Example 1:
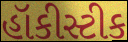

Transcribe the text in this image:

હૉકીસ્ટીક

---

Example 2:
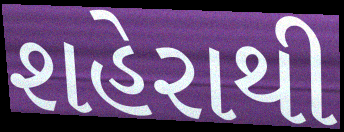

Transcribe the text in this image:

શહેરાથી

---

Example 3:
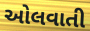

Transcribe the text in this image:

ઓલવાતી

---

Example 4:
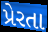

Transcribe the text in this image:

પ્રેરતા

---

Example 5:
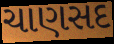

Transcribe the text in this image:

ચાણસદ